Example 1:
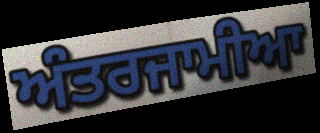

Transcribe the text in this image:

ਅੰਤਰਜਾਮੀਆ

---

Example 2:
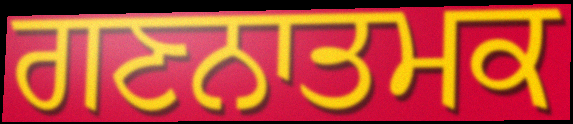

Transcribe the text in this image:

ਗਣਨਾਤਮਕ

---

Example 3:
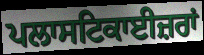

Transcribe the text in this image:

ਪਲਾਸਟਿਕਾਈਜ਼ਰਾਂ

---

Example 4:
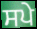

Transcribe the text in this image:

ਸਪੇ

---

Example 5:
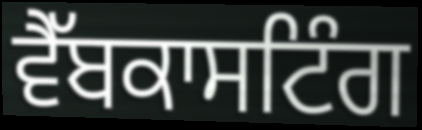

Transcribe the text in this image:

ਵੈੱਬਕਾਸਟਿੰਗ